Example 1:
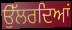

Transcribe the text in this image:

ਉੱਲਰਦਿਆਂ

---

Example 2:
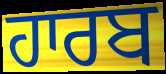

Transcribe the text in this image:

ਹਾਰਬ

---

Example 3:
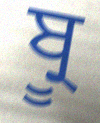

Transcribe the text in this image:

ਬ੍ਰੂ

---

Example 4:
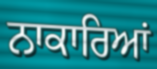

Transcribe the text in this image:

ਨਾਕਾਰਿਆਂ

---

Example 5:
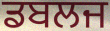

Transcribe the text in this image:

ਡਬਲਜ